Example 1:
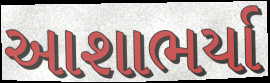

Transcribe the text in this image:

આશાભર્યા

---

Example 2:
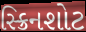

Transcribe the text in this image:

સ્ક્રિનશોટ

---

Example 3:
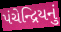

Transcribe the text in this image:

પંચેન્દ્રિયનું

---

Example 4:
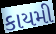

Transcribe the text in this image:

કાયમી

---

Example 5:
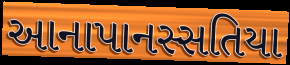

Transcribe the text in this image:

આનાપાનસ્સતિયા